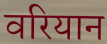
वरियान